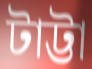
টাট্টা